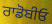
ਰਾਡੋਬੀਓ